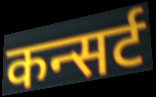
कन्सर्ट